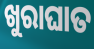
ଖୁରାଘାତ